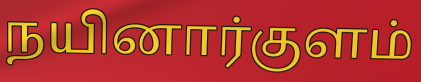
நயினார்குளம்